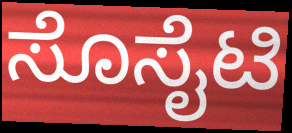
ಸೊಸೈಟಿ